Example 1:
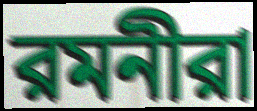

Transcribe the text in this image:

রমনীরা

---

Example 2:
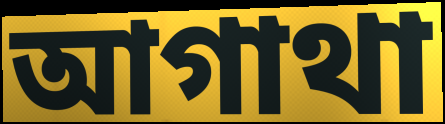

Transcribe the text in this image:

আগাথা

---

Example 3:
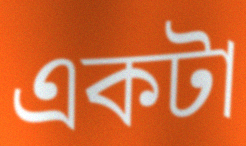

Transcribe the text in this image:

একটা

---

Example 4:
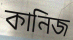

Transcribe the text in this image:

কানিজ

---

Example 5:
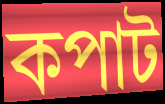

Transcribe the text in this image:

কপাট